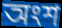
অংশ